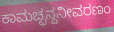
ಕಾಮಚ್ಛನ್ದನೀವರಣಂ